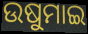
ଉଷୁମାଇ